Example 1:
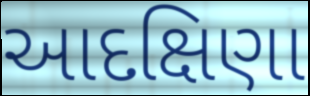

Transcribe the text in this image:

આદક્ષિણા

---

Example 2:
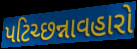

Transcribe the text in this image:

પટિચ્છન્નાવહારો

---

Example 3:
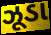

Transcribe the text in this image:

ઝૂડા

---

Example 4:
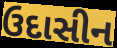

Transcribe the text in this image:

ઉદાસીન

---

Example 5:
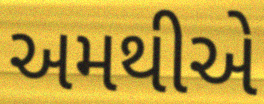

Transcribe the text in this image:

અમથીએ